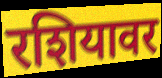
रशियावर